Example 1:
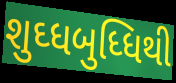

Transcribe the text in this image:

શુઘ્ધબુધ્ધિથી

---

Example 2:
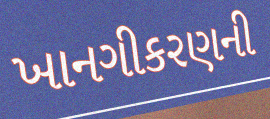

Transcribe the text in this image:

ખાનગીકરણની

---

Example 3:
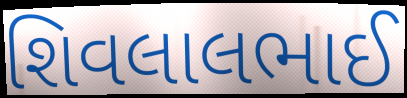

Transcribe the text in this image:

શિવલાલભાઈ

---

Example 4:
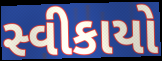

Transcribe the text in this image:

સ્વીકાયો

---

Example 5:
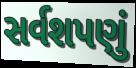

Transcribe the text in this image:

સર્વશપણું